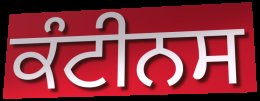
ਕੰਟੀਨਸ